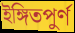
ইঙ্গিতপুর্ণ